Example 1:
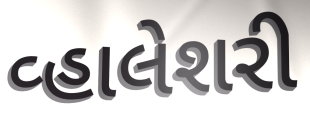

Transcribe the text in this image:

વ્હાલેશરી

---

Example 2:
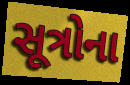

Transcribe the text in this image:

સૂત્રોના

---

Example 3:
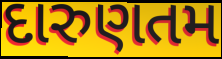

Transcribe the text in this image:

દારુણતમ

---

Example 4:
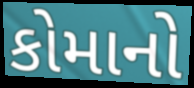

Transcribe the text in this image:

કોમાનો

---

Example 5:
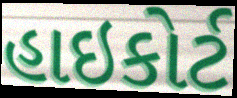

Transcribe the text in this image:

હાઇકોર્ટ